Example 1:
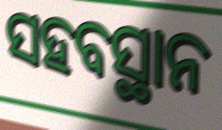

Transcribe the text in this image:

ସହବସ୍ଥାନ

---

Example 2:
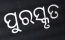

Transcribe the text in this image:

ପୁରସ୍କୃତ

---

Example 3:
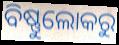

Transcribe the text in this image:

ବିଷ୍ଣୁଲୋକରୁ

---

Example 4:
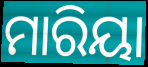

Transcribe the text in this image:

ମାରିୟା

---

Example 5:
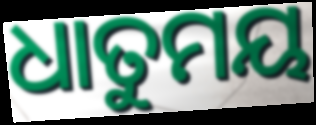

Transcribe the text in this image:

ଧାତୁମୟ